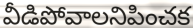
వీడిపోవాలనిపించక